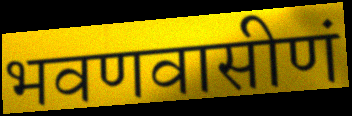
भवणवासीणं